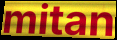
mitan